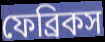
ফেব্রিকস